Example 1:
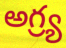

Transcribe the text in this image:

అగ్ర్య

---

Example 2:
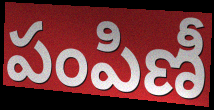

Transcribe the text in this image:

పంపిణీ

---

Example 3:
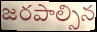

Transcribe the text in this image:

జరపాల్సిన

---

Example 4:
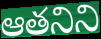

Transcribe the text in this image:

ఆతనిని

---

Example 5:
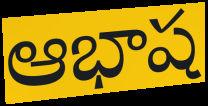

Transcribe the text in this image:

ఆభాష